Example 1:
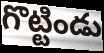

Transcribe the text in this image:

గొట్టిండు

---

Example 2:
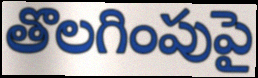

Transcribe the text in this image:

తొలగింపుపై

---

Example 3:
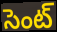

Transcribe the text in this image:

సెంట్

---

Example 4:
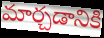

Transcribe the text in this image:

మార్చడానికి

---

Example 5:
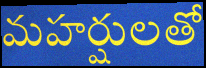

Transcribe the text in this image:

మహర్షులతో